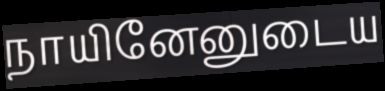
நாயினேனுடைய